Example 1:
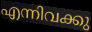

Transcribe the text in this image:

എന്നിവക്കു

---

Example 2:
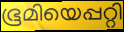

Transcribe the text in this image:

ഭൂമിയെപ്പറ്റി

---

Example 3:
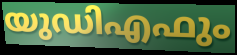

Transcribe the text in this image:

യുഡിഎഫും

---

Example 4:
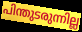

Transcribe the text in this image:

പിന്തുടരുന്നില്ല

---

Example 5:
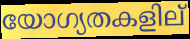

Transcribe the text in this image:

യോഗ്യതകളില്